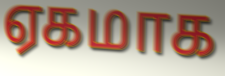
ஏகமாக